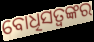
ବୋଧିସତ୍ୱଙ୍କର